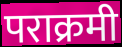
पराक्रमी